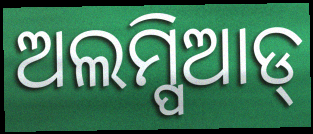
ଅଲମ୍ପିଆଡ୍